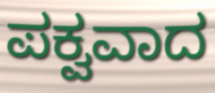
ಪಕ್ವವಾದ